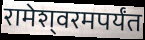
रामेश्वरमपर्यंत